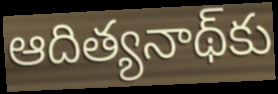
ఆదిత్యనాథ్‌కు